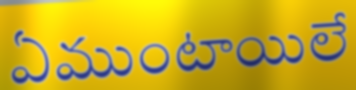
ఏముంటాయిలే